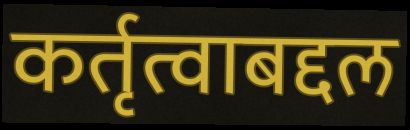
कर्तृत्वाबद्दल